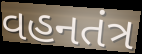
વહનતંત્ર